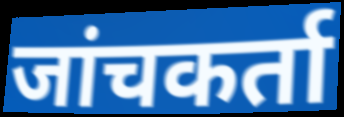
जांचकर्ता